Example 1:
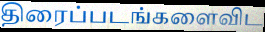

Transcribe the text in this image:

திரைப்படங்களைவிட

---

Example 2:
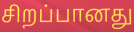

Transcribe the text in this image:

சிறப்பானது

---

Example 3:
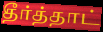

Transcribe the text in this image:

தீர்த்தாட்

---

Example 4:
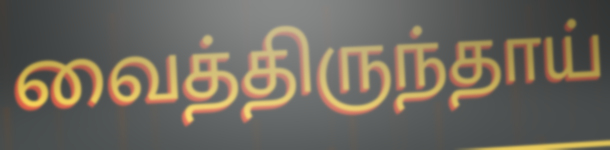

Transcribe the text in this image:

வைத்திருந்தாய்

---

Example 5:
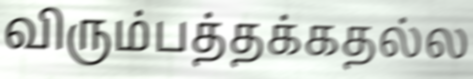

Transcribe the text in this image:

விரும்பத்தக்கதல்ல